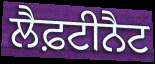
ਲੈਫ਼ਟੀਨੈਟ